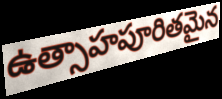
ఉత్సాహపూరితమైన